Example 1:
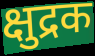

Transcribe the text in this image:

क्षुद्रक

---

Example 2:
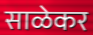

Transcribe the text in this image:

साळेकर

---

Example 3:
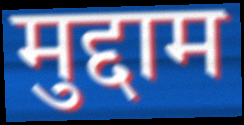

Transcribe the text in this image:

मुद्दाम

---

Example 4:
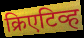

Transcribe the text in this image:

क्रिएटिव्ह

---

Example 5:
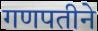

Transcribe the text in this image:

गणपतीने